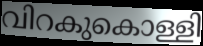
വിറകുകൊള്ളി